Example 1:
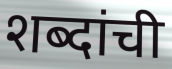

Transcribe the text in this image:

शब्दांची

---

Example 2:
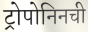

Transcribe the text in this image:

ट्रोपोनिनची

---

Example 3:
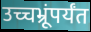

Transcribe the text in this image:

उच्चभ्रूंपर्यंत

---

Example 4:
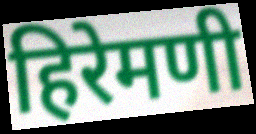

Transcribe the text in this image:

हिरेमणी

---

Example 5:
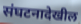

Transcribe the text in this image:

संघटनादेखील